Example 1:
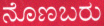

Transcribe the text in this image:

ನೊಣಬರು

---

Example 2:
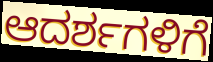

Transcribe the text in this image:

ಆದರ್ಶಗಳಿಗೆ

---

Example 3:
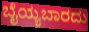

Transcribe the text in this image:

ಬೈಯ್ಯಬಾರದು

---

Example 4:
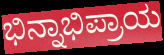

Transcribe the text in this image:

ಭಿನ್ನಾಭಿಪ್ರಾಯ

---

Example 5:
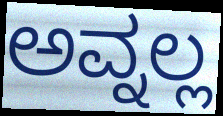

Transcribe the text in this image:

ಅವ್ನಲ್ಲ